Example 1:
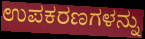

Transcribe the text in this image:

ಉಪಕರಣಗಳನ್ನು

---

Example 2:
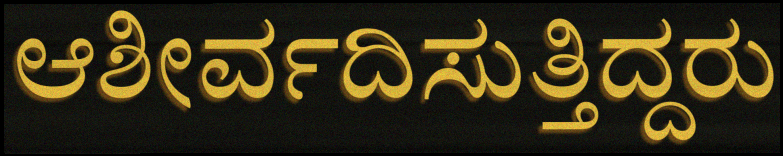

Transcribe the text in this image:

ಆಶೀರ್ವದಿಸುತ್ತಿದ್ದರು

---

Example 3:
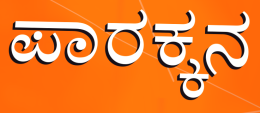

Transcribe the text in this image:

ಪಾರಕ್ಕನ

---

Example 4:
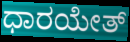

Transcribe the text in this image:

ಧಾರಯೇತ್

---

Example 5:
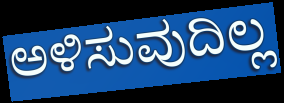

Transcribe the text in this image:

ಅಳಿಸುವುದಿಲ್ಲ